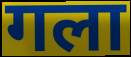
गला